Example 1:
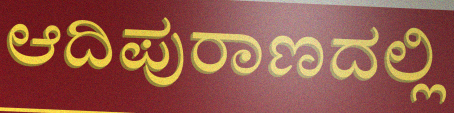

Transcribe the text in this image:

ಆದಿಪುರಾಣದಲ್ಲಿ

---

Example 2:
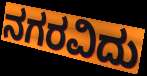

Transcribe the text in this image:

ನಗರವಿದು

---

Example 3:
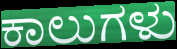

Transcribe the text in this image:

ಕಾಲುಗಳು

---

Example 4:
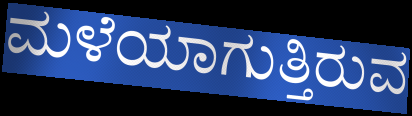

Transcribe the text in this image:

ಮಳೆಯಾಗುತ್ತಿರುವ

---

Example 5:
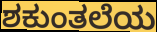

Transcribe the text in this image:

ಶಕುಂತಲೆಯ